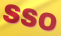
SSO